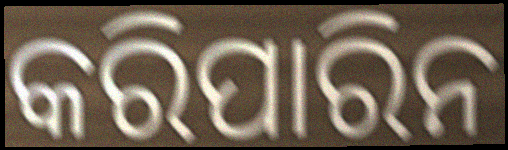
କରିପାରିନ